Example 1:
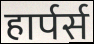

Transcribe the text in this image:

हार्पर्स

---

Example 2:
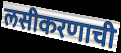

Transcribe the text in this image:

लसीकरणाची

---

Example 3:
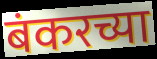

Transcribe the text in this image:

बंकरच्या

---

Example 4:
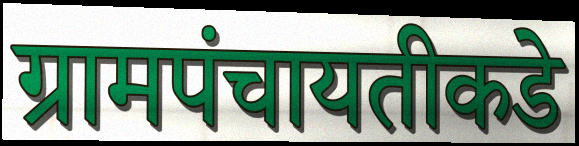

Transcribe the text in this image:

ग्रामपंचायतीकडे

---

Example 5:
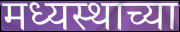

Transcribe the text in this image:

मध्यस्थाच्या